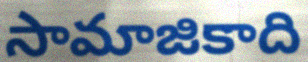
సామాజికాది